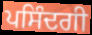
ਪਸਿੰਦਗੀ